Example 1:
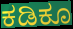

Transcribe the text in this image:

ಕಡಿಕೂ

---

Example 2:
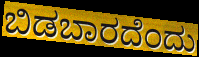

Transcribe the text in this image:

ಬಿಡಬಾರದೆಂದು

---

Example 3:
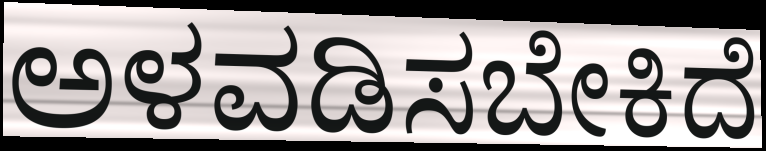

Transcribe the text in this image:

ಅಳವಡಿಸಬೇಕಿದೆ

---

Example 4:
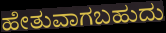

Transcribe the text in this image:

ಹೇತುವಾಗಬಹುದು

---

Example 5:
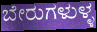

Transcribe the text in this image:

ಬೇರುಗಳುಳ್ಳ